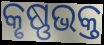
କୃଷ୍ଣଭକ୍ତ